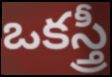
ఒకస్త్రీ